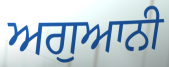
ਅਗੁਆਨੀ